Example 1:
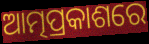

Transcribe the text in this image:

ଆତ୍ମପ୍ରକାଶରେ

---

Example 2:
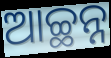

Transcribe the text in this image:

ଆଚ୍ଛନ୍ନ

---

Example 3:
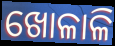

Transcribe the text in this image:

ଖୋଳାଳି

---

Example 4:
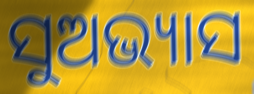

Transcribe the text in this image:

ସୁଅଭ୍ୟାସ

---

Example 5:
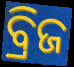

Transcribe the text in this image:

ବ୍ରିଜ